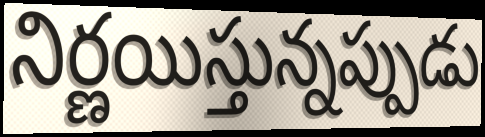
నిర్ణయిస్తున్నప్పుడు